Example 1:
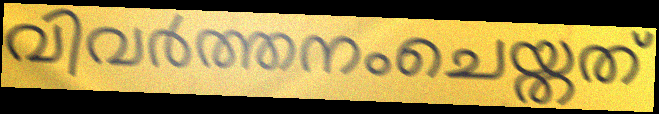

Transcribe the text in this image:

വിവർത്തനംചെയ്തത്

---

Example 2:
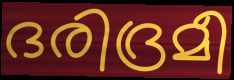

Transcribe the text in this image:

ദരിദ്രമീ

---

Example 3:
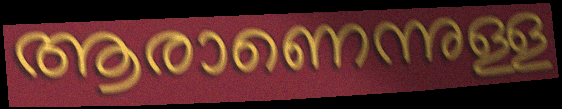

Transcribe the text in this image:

ആരാണെന്നുള്ള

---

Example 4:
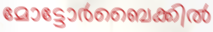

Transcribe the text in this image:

മോട്ടോർബൈക്കിൽ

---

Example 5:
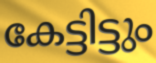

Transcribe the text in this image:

കേട്ടിട്ടും